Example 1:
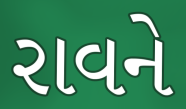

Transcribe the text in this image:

રાવને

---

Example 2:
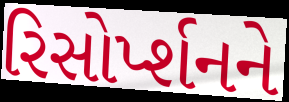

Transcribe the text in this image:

રિસોર્પ્શનને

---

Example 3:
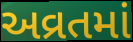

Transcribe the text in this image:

અવ્રતમાં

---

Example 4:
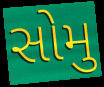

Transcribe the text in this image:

સોમુ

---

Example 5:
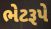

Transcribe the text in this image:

ભેટરૂપે